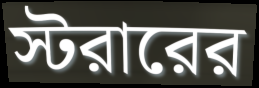
স্টরারের